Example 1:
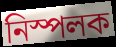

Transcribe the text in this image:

নিস্পলক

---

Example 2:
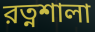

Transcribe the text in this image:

রত্নশালা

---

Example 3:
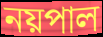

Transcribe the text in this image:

নয়পাল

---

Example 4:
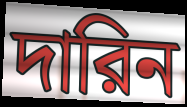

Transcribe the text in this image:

দারিন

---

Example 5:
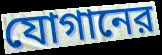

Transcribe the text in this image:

যোগানের